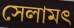
সেলামৎ